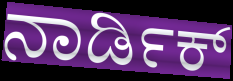
ನಾರ್ಡಿಕ್